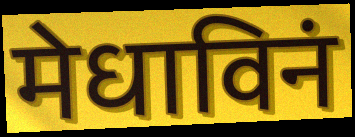
मेधाविनं